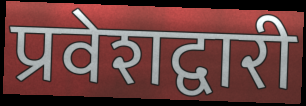
प्रवेशद्वारी